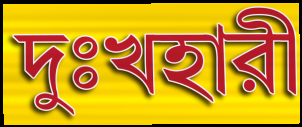
দুঃখহারী